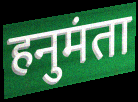
हनुमंता